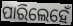
ପାରିଲେହେଁ